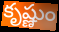
కృష్ణుం